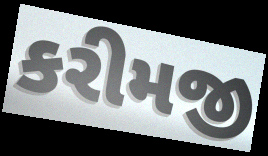
કરીમજી